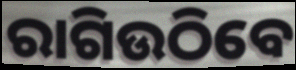
ରାଗିଉଠିବେ